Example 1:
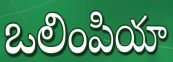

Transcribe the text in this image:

ఒలింపియా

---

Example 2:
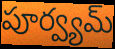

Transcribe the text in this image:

పూర్వ్యమ్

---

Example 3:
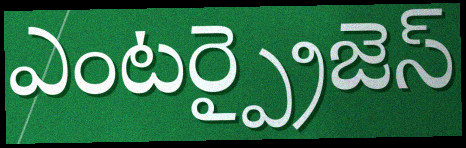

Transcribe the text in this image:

ఎంటర్ప్రైజెస్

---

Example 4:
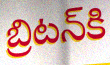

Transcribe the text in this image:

బ్రిటన్‌కి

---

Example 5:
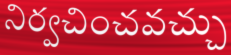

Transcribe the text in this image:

నిర్వచించవచ్చు